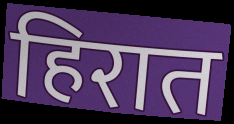
हिरात